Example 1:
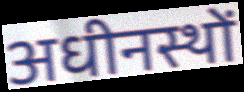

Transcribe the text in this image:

अधीनस्थों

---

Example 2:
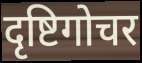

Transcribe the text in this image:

दृष्टिगोचर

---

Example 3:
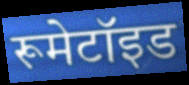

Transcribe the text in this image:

रूमेटॉइड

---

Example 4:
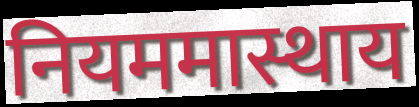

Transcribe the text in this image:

नियममास्थाय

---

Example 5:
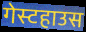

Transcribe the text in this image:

गेस्टहाउस